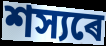
শস্যৰে